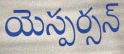
యెస్పర్సన్